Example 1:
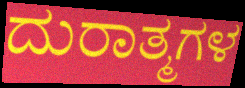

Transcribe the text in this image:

ದುರಾತ್ಮಗಳ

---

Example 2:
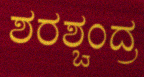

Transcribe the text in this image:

ಶರಶ್ಚಂದ್ರ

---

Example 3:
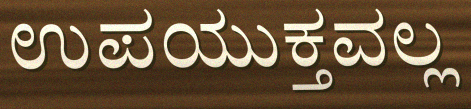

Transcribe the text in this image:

ಉಪಯುಕ್ತವಲ್ಲ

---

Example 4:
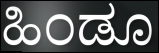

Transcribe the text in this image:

ಹಿಂಡೂ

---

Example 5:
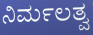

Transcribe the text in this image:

ನಿರ್ಮಲತ್ವ